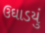
ઉઘાડયું